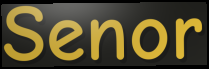
Senor